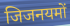
जिजनयमों